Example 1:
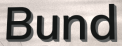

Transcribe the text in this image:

Bund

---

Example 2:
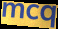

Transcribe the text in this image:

mcq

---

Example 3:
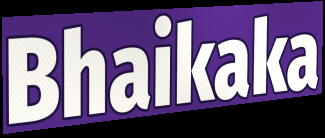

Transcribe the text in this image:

Bhaikaka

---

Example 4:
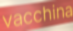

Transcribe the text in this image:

vacchina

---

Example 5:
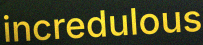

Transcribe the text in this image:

incredulous